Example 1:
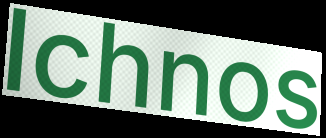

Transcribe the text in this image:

Ichnos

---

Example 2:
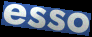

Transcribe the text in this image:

esso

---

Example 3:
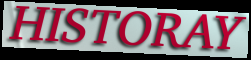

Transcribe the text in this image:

HISTORAY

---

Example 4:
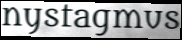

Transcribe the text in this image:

nystagmus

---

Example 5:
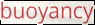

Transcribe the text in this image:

buoyancy